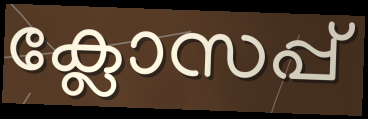
ക്ലോസപ്പ്